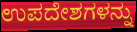
ಉಪದೇಶಗಳನ್ನು